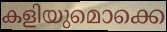
കളിയുമൊക്കെ